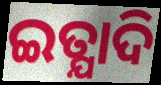
ଇତ୍ଯାଦି